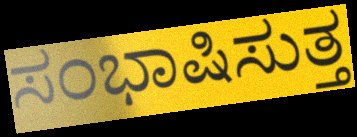
ಸಂಭಾಷಿಸುತ್ತ